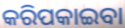
କରିପକାଇବା